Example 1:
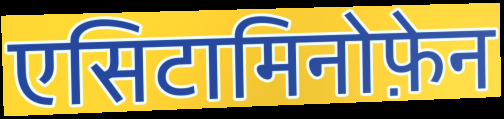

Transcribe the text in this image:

एसिटामिनोफ़ेन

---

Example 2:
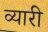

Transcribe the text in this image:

व्यारी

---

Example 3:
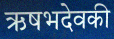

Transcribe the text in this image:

ऋषभदेवकी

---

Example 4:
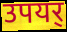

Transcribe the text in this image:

उपयर्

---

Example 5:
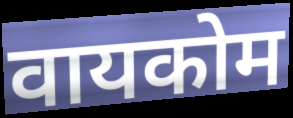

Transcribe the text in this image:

वायकोम